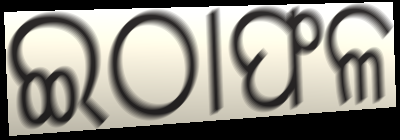
ଇଠାଫଳ